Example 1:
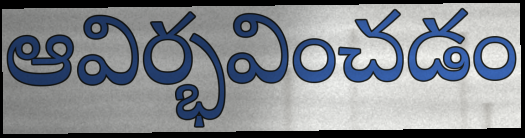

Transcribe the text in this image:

ఆవిర్భవించడం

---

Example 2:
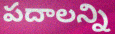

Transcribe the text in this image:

పదాలన్ని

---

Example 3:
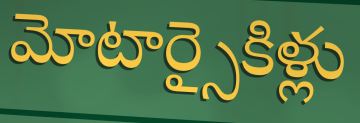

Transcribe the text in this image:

మోటార్సైకిళ్లు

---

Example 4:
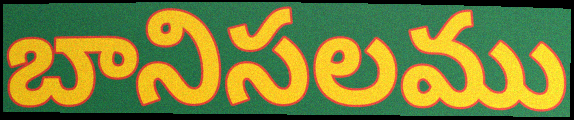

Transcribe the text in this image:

బానిసలము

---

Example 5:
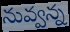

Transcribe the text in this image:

నువ్వన్న